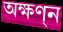
অক্ষণ্ন